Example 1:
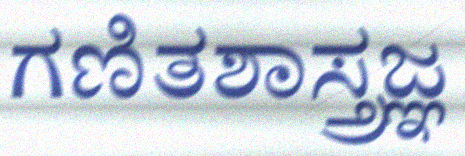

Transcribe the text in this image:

ಗಣಿತಶಾಸ್ತ್ರಜ್ಞ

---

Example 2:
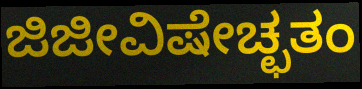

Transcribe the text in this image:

ಜಿಜೀವಿಷೇಚ್ಛತಂ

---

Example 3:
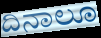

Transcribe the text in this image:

ದಿನಾಲೂ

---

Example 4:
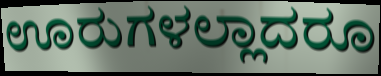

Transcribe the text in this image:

ಊರುಗಳಲ್ಲಾದರೂ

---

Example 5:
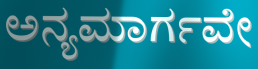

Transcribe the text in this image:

ಅನ್ಯಮಾರ್ಗವೇ